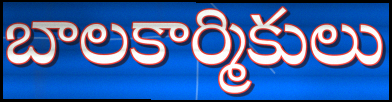
బాలకార్మికులు